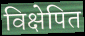
विक्षेपित